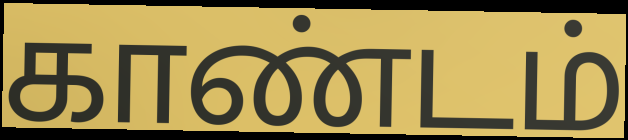
காண்டம்